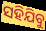
ସହିଯିବୁ